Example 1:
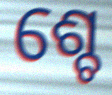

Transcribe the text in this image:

ଶ୍ଚେ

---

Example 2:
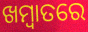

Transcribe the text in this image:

ଖମ୍ବାତରେ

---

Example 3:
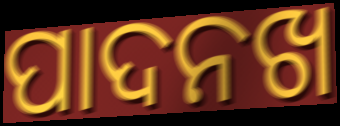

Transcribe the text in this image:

ପାଦନଖ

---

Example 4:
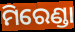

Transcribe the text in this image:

ମିରେଣ୍ଡା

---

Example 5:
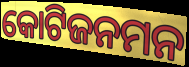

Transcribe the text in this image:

କୋଟିଜନମନ